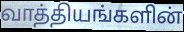
வாத்தியங்களின்